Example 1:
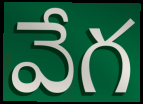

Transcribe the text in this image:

వేగ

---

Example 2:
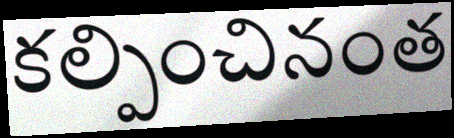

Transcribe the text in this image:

కల్పించినంత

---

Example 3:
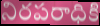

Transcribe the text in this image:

నిరపరాధికి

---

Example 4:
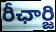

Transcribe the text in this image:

రీఛార్జి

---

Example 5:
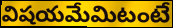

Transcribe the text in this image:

విషయమేమిటంటే